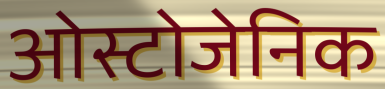
ओस्टोजेनिक